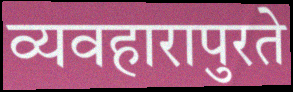
व्यवहारापुरते